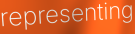
representing